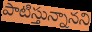
పాటిస్తున్నానని